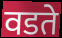
वडते